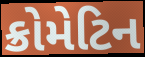
ક્રોમેટિન